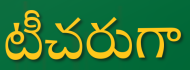
టీచరుగా